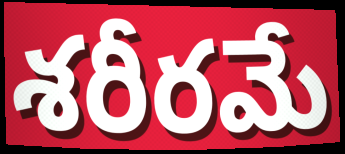
శరీరమే